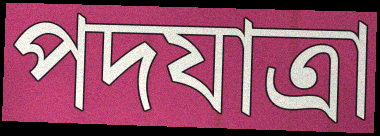
পদযাত্রা